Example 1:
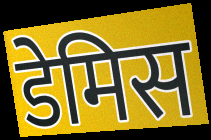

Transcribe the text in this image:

डेमिस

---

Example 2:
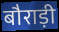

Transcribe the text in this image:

बौराड़ी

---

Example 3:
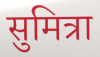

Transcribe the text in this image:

सुमित्रा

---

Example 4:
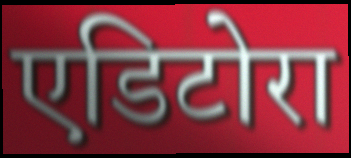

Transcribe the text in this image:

एडिटोरा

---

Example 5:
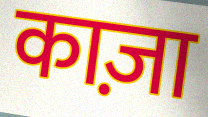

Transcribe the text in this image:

काज़ा